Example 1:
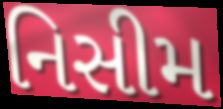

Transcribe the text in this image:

નિસીમ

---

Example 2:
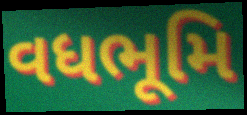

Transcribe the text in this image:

વધભૂમિ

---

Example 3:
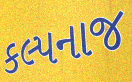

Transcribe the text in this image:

કલ્પનાજ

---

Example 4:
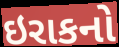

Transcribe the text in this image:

ઇરાકનો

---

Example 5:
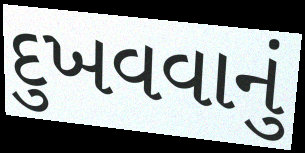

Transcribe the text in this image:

દુખવવાનું